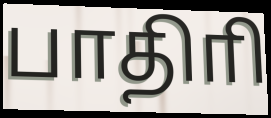
பாதிரி